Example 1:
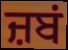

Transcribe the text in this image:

ਜ਼ਬਂ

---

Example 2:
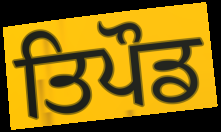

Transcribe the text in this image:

ਤਿਪੌਡ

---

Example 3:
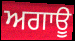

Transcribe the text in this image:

ਅਗਾਊੂਂ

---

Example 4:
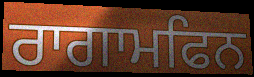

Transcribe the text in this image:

ਰਾਗਾਮਫਿਨ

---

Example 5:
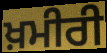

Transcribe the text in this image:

ਖ਼ਮੀਰੀ